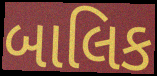
બાલિક